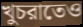
খুচরাতেও